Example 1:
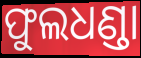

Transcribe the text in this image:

ଫୁଲଧଣ୍ଡା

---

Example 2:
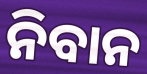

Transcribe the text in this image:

ନିବାନ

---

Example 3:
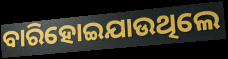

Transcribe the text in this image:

ବାରିହୋଇଯାଉଥିଲେ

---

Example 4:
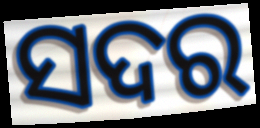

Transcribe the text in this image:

ସଦର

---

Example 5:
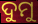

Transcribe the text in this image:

ଦୁମୁ